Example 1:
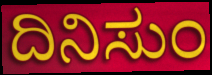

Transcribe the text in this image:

ದಿನಿಸುಂ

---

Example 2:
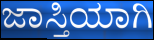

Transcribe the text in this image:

ಜಾಸ್ತಿಯಾಗಿ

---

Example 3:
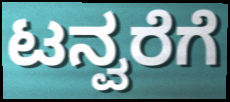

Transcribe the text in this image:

ಟನ್ವರೆಗೆ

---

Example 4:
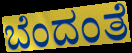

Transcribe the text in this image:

ಬೆಂದಂತೆ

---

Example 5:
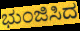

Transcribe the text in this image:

ಭುಂಜಿಸಿದ